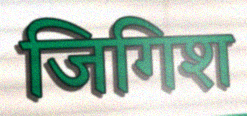
जिगिश